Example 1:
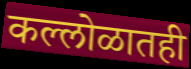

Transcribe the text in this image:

कल्लोळातही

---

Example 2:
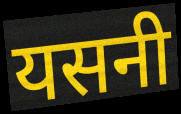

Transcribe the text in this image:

यसनी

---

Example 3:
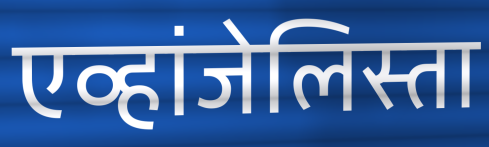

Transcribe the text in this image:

एव्हांजेलिस्ता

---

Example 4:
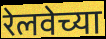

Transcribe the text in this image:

रेलवेच्या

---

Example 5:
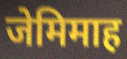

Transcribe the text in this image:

जेमिमाह